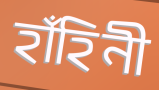
হাঁহিনী